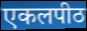
एकलपीठ